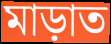
মাড়াত